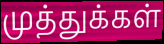
முத்துக்கள்